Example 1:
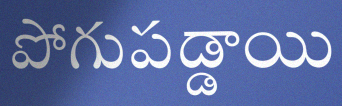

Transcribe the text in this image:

పోగుపడ్డాయి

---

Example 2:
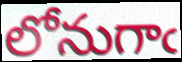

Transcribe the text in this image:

లోనుగాఁ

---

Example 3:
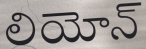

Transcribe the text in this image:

లియోన్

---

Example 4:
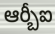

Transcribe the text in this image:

ఆర్బీఐ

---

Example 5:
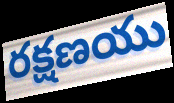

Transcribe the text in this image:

రక్షణయు